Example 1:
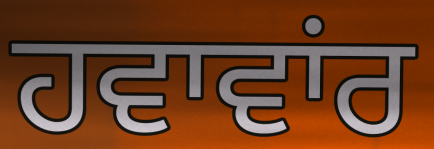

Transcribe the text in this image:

ਹਵਾਵਾਂਰ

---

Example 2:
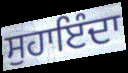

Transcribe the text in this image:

ਸੁਹਾਇੰਦਾ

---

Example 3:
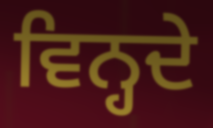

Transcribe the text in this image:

ਵਿਨ੍ਹਦੇ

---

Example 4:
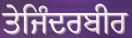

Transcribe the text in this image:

ਤੇਜਿੰਦਰਬੀਰ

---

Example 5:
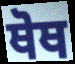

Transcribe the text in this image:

ਥੋਥ